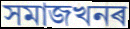
সমাজখনৰ